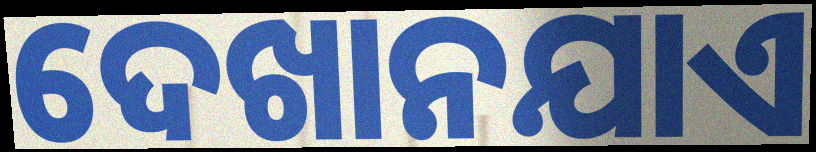
ଦେଖାନଯାଏ